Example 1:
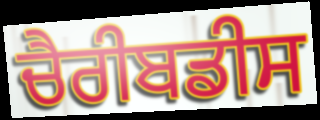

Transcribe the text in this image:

ਚੈਰੀਬਡੀਸ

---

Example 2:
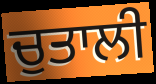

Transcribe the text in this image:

ਚੁਤਾਲੀ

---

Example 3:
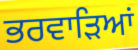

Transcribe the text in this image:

ਭਰਵਾੜਿਆਂ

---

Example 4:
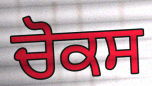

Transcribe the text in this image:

ਚੋਕਸ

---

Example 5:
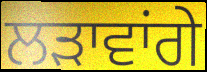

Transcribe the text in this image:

ਲੜਾਵਾਂਗੇ